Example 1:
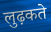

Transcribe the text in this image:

लुढ़कते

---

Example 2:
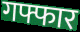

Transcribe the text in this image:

गफ्फार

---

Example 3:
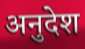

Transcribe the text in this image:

अनुदेश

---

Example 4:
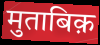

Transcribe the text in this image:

मुताबिक़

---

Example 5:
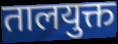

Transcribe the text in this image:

तालयुक्त